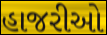
હાજરીઓ